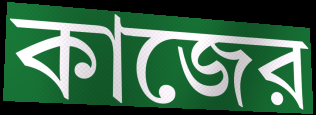
কাজের